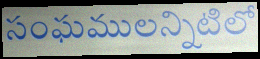
సంఘములన్నిటిలో